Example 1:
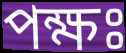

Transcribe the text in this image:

পক্ষঃ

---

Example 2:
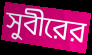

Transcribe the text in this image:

সুবীরের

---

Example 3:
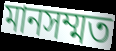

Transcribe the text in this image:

মানসম্মত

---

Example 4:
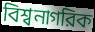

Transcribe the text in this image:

বিশ্বনাগরিক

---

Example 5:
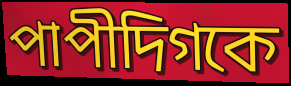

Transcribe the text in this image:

পাপীদিগকে